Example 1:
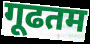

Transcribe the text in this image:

गूढतम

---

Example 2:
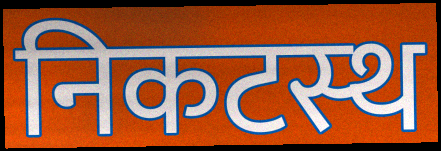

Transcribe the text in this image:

निकटस्‍थ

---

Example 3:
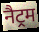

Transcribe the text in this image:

नैट्रम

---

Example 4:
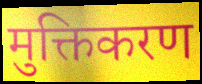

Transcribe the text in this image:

मुक्तिकरण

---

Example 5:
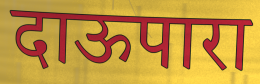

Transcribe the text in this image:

दाऊपारा